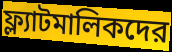
ফ্ল্যাটমালিকদের